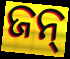
ଜନ୍